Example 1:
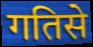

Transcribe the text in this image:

गतिसे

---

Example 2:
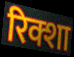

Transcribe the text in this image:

रिक्‍शा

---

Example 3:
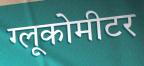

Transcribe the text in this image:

ग्लूकोमीटर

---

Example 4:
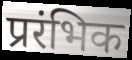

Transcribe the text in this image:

प्ररंभिक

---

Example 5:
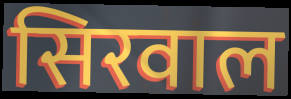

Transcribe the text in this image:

सिरवाल